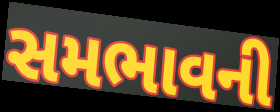
સમભાવની